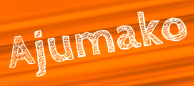
Ajumako